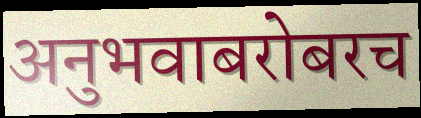
अनुभवाबरोबरच